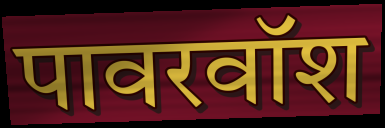
पावरवॉश